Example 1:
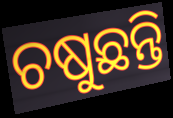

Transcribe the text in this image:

ଚଷୁଛନ୍ତି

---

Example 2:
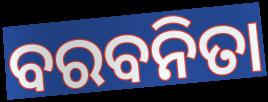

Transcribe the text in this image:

ବରବନିତା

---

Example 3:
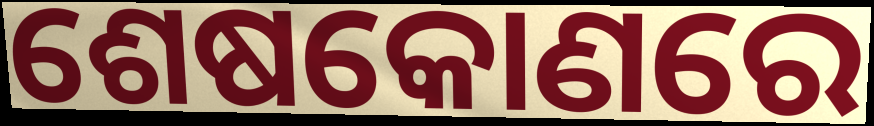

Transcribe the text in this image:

ଶେଷକୋଣରେ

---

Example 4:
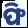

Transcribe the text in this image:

ଫି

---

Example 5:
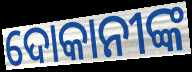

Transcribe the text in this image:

ଦୋକାନୀଙ୍କ